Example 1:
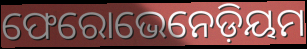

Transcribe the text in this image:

ଫେରୋଭେନେଡ଼ିୟମ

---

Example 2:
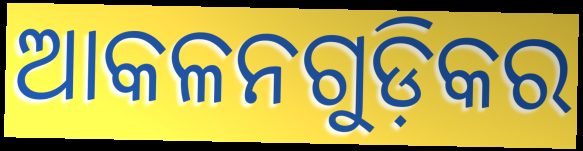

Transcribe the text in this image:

ଆକଳନଗୁଡ଼ିକର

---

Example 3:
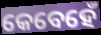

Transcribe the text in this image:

କେବେହେଁ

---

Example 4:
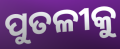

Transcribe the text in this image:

ପୁତଳୀକୁ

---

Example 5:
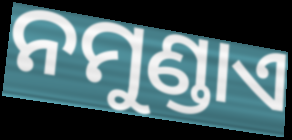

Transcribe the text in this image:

ନମୁଣ୍ଡାଏ